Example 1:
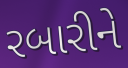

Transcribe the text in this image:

રબારીને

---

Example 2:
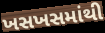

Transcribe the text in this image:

ખસખસમાંથી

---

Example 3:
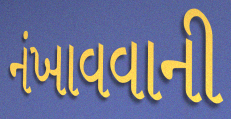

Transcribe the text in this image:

નંખાવવાની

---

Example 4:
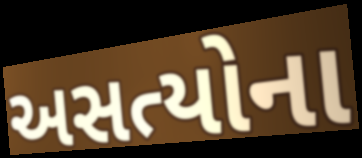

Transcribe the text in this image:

અસત્યોના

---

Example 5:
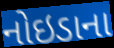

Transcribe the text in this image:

નોઇડાના